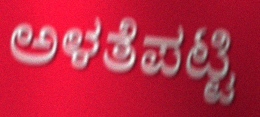
ಅಳತೆಪಟ್ಟಿ